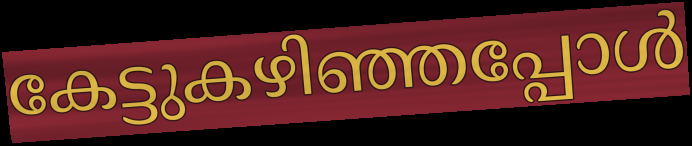
കേട്ടുകഴിഞ്ഞപ്പോൾ